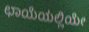
ಛಾಯೆಯಲ್ಲಿಯೇ